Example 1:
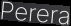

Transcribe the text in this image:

Perera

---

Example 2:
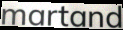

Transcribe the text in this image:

martand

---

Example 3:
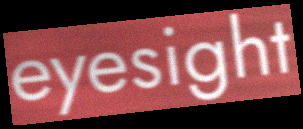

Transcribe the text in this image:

eyesight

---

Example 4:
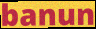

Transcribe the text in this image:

banun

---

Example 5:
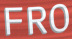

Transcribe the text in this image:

FRO